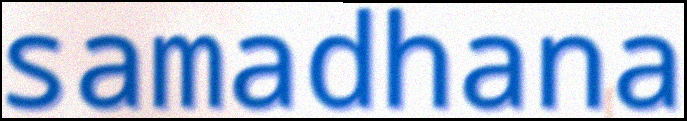
samadhana